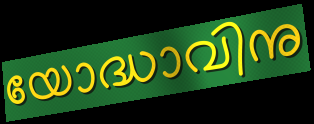
യോദ്ധാവിനു